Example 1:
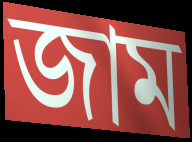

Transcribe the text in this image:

জাম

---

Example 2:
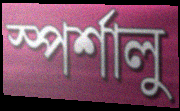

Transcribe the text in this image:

স্পর্শালু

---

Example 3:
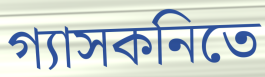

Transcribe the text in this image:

গ্যাসকনিতে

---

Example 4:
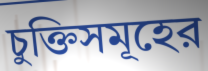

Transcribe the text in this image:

চুক্তিসমূহের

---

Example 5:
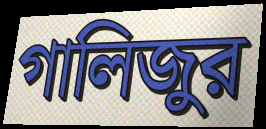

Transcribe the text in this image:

গালিজুর